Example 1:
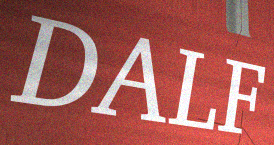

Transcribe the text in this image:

DALF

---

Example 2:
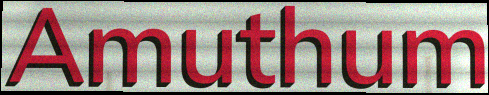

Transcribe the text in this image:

Amuthum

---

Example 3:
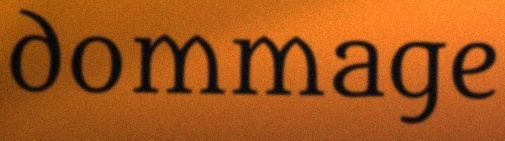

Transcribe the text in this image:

dommage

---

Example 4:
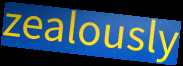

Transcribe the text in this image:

zealously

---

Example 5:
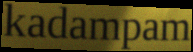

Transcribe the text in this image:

kadampam